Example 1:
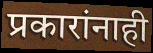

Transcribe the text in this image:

प्रकारांनाही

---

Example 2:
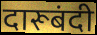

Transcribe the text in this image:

दारूबंदी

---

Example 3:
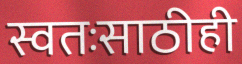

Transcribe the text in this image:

स्वतःसाठीही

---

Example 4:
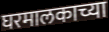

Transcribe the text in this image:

घरमालकाच्या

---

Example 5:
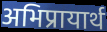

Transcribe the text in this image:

अभिप्रायार्थ